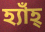
হ্যাঁহ্